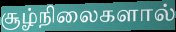
சூழ்நிலைகளால்